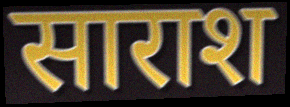
साराश